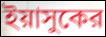
ইয়াসুকের